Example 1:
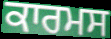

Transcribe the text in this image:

ਕਾਰਮਸ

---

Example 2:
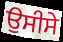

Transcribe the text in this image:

ਉਸੀਸੇ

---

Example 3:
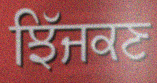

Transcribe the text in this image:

ਝਿੱਜਕਣ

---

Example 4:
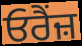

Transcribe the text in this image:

ਓਰੈਂਜ਼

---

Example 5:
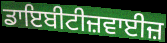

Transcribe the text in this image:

ਡਾਇਬੀਟੀਜ਼ਵਾਈਜ਼